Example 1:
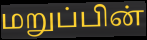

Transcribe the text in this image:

மறுப்பின்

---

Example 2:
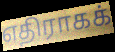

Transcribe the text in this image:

எதிராகக்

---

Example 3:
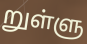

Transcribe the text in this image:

றுள்ளு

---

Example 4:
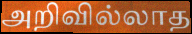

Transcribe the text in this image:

அறிவில்லாத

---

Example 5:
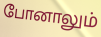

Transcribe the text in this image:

போனாலும்